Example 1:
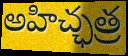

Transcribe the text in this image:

అహిచ్ఛత్ర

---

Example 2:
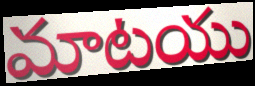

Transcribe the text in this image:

మాటయు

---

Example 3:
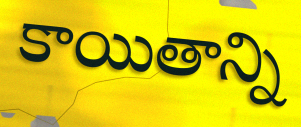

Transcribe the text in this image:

కాయితాన్ని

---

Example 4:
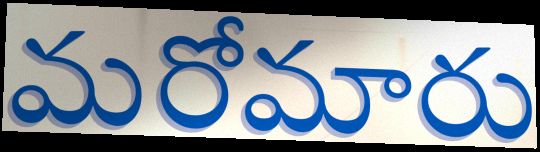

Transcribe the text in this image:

మరోమారు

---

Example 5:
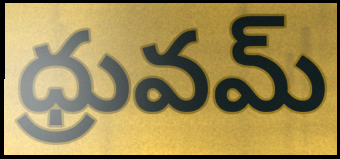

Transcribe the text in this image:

ధ్రువమ్